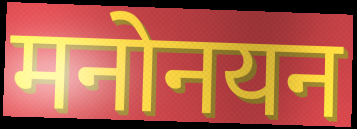
मनोनयन